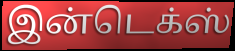
இன்டெக்ஸ்